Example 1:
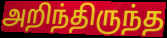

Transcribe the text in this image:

அறிந்திருந்த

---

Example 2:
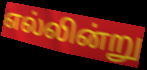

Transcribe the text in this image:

எல்லின்று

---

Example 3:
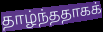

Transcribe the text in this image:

தாழ்ந்ததாகக்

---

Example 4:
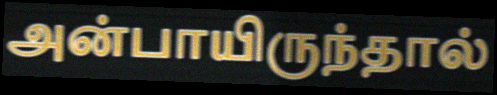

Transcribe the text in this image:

அன்பாயிருந்தால்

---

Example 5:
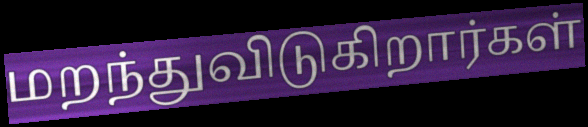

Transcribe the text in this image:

மறந்துவிடுகிறார்கள்